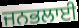
ਜਨਭਲਾਈ